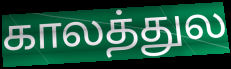
காலத்துல